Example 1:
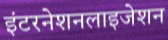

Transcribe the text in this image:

इंटरनेशनलाइजेशन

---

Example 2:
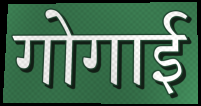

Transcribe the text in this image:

गोगाई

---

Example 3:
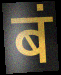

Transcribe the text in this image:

बं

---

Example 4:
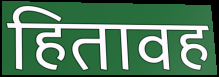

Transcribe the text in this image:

हितावह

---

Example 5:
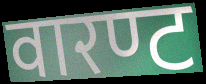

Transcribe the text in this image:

वारण्ट